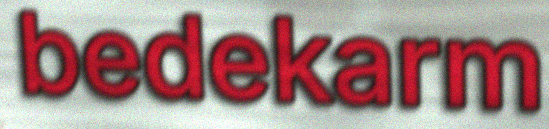
bedekarm